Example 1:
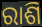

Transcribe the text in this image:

ରାଶି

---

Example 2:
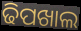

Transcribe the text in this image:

ଢିପଖାଲ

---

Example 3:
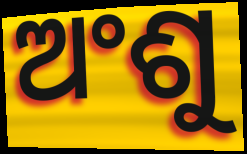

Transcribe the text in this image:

ଅଂଶୁ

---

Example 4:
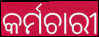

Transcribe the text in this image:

କର୍ମଚାରୀ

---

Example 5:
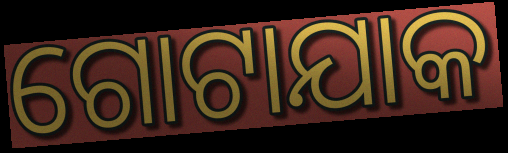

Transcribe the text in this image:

ଗୋଟାଯାକ